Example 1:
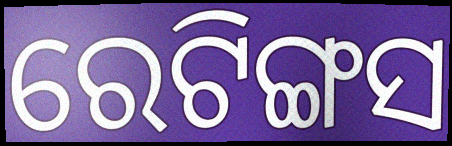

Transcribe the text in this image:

ରେଟିଙ୍ଗସ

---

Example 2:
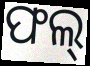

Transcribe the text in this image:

ଫଲ୍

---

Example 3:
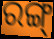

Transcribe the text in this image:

ରଙ୍ଗ୍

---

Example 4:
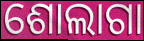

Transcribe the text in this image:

ଶୋଲାଗା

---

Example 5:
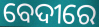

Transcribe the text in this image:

ବେଦୀରେ